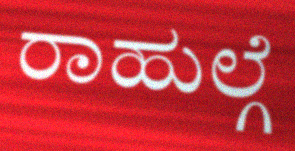
ರಾಹುಲ್ಗೆ